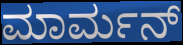
ಮಾರ್ಮನ್